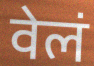
वेलं